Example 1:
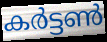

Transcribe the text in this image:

കർട്ടൺ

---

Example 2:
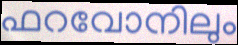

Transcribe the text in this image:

ഫറവോനിലും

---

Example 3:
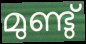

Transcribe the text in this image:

മുണ്ടു്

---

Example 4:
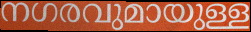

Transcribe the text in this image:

നഗരവുമായുള്ള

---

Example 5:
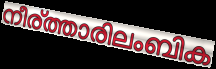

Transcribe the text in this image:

നീര്ത്താരിലംബിക